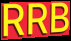
RRB